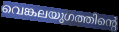
വെങ്കലയുഗത്തിന്റെ